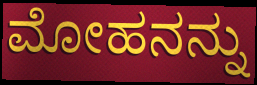
ಮೋಹನನ್ನು